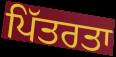
ਪਿੱਤਰਤਾ